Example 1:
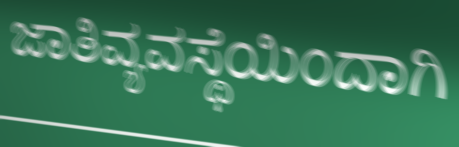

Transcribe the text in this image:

ಜಾತಿವ್ಯವಸ್ಥೆಯಿಂದಾಗಿ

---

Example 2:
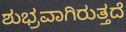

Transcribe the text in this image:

ಶುಭ್ರವಾಗಿರುತ್ತದೆ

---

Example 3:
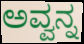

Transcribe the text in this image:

ಅವ್ವನ್ನ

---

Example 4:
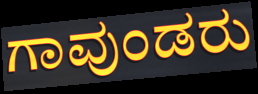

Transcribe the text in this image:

ಗಾವುಂಡರು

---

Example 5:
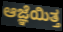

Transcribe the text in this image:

ಆಜ್ಞೆಯಿತ್ತ